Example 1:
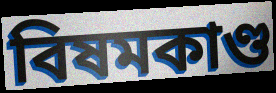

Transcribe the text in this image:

বিষমকাণ্ড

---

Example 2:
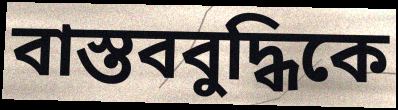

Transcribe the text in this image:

বাস্তববুদ্ধিকে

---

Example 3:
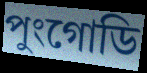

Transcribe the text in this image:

পুংগোডি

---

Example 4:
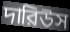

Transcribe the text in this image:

দারিউস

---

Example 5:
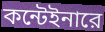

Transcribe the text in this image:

কন্টেইনারে